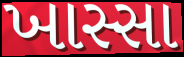
ખાસ્સા